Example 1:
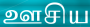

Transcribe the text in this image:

ஊசிய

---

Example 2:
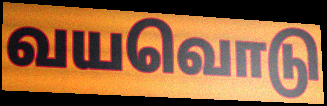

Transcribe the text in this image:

வயவொடு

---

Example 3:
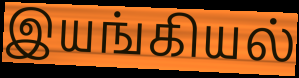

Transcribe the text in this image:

இயங்கியல்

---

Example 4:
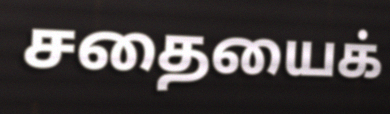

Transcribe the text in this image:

சதையைக்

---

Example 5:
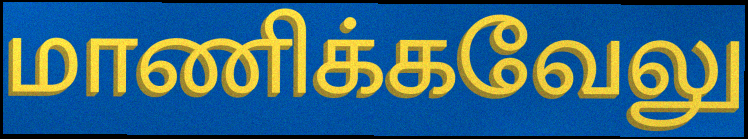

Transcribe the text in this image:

மாணிக்கவேலு